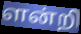
ளன்றி